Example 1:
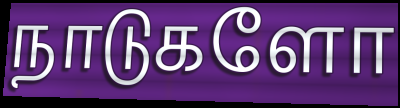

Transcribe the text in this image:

நாடுகளோ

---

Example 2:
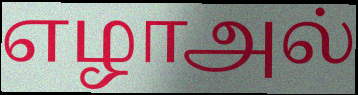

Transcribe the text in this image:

எழாஅல்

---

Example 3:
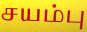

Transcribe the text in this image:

சயம்பு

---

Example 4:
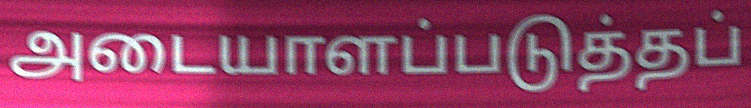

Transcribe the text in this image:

அடையாளப்படுத்தப்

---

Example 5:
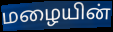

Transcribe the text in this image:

மழையின்